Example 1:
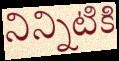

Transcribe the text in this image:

నిన్నిటికి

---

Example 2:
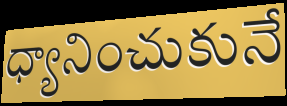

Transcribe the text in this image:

ధ్యానించుకునే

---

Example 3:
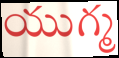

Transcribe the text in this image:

యుగ్మ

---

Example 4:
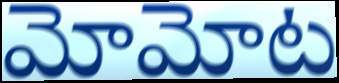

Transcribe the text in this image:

మోమోట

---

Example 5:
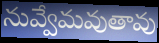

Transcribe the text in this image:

నువ్వేమవుతావు